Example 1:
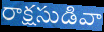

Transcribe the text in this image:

రాక్షసుడివా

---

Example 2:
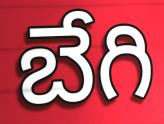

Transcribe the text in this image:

బేగి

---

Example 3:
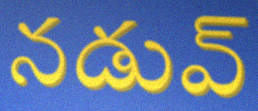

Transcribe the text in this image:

నడువ్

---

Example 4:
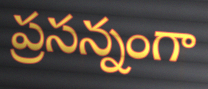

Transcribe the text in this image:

ప్రసన్నంగా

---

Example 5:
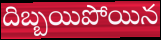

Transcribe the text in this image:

దిబ్బయిపోయిన